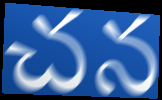
చన